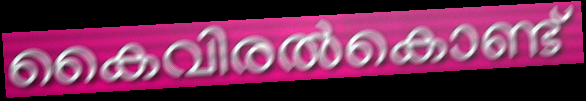
കൈവിരൽകൊണ്ട്